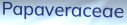
Papaveraceae